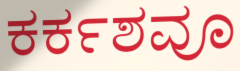
ಕರ್ಕಶವೂ